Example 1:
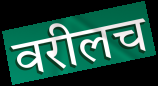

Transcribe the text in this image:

वरीलच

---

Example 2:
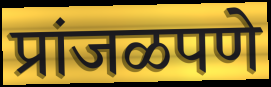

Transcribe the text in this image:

प्रांजळपणे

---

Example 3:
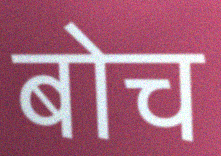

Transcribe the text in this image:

बोच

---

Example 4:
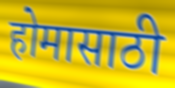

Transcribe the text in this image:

होमासाठी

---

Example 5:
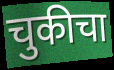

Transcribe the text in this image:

चुकीचा